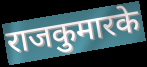
राजकुमारके